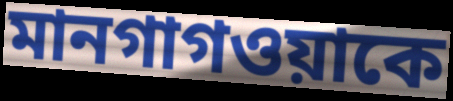
মানগাগওয়াকে